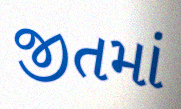
જીતમાં